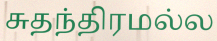
சுதந்திரமல்ல